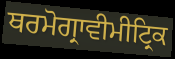
ਥਰਮੋਗ੍ਰਾਵੀਮੀਟ੍ਰਿਕ